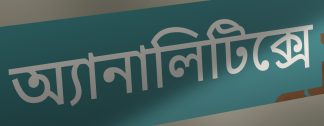
অ্যানালিটিক্সে